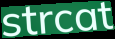
strcat